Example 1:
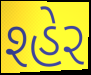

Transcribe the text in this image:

શ્હેર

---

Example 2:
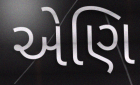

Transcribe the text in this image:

એણિ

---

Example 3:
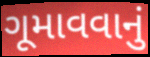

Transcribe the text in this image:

ગૂમાવવાનું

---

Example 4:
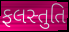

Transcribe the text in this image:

ફલસ્તુતિ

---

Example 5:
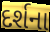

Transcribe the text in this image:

દર્શના